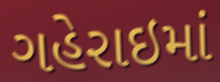
ગહેરાઇમાં